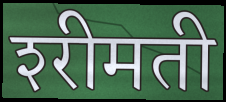
श्रीमती